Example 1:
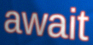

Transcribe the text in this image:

await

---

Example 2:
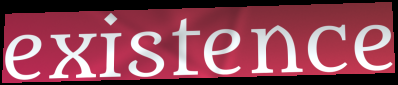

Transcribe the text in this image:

existence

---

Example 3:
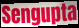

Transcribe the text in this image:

Sengupta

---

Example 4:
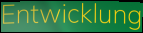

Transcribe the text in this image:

Entwicklung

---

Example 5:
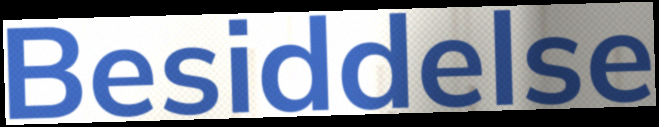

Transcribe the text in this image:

Besiddelse